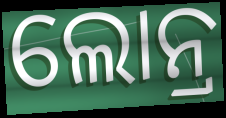
ଲୋନ୍ର